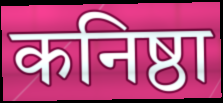
कनिष्ठा